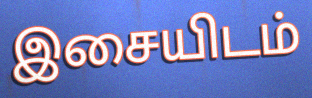
இசையிடம்